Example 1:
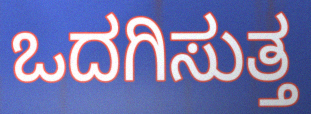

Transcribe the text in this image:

ಒದಗಿಸುತ್ತ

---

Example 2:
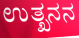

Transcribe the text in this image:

ಉತ್ಖನನ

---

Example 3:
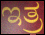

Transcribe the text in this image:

ಇತ್ರ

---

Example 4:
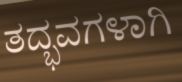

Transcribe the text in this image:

ತದ್ಭವಗಳಾಗಿ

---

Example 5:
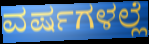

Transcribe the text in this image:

ವರ್ಷಗಳಲ್ಲೆ